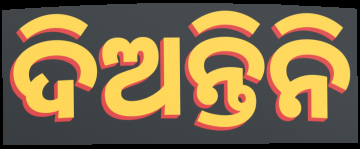
ଦିଅନ୍ତିନି